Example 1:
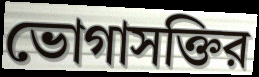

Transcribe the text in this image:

ভোগাসক্তির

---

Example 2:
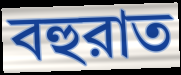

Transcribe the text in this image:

বহুরাত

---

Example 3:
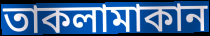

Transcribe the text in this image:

তাকলামাকান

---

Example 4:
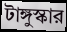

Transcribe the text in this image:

টাঙ্গুস্কার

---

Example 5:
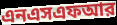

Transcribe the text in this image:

এনএসএফআর